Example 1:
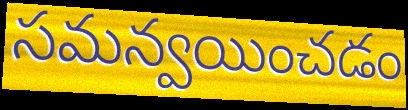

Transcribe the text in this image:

సమన్వయించడం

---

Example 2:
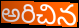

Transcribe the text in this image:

అరిచిన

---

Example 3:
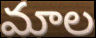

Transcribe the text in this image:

మాల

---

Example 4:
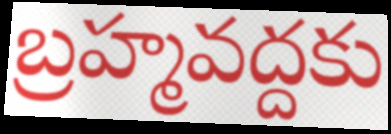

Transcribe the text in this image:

బ్రహ్మవద్దకు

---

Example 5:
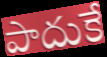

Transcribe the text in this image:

పాదుకే